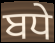
ਬਧੇ